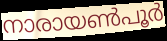
നാരായൺപൂർ